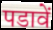
पडावें